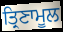
ਤ੍ਰਿਣਾਮੂਲ